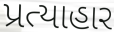
પ્રત્યાહાર